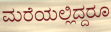
ಮರೆಯಲ್ಲಿದ್ದರೂ